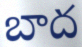
బాద